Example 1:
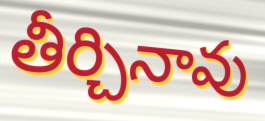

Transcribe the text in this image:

తీర్చినావు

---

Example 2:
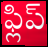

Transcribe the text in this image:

ఫ్లిప్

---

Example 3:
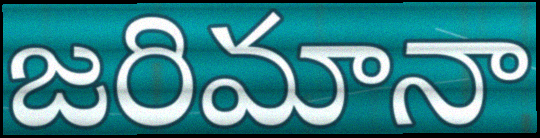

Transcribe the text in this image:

జరిమానా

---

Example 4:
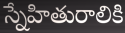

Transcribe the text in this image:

స్నేహితురాలికి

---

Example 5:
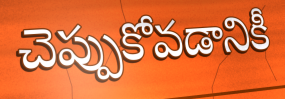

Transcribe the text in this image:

చెప్పుకోవడానికీ